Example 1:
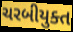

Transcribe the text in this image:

ચરબીયુક્ત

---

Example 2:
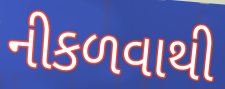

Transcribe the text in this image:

નીકળવાથી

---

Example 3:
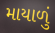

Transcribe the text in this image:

માયાળું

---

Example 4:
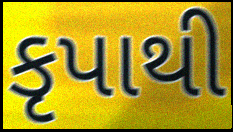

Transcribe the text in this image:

કૃપાથી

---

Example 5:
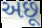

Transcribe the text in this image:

અછૂ